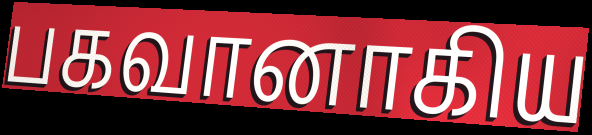
பகவானாகிய